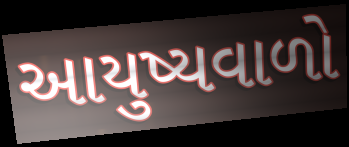
આયુષ્યવાળો